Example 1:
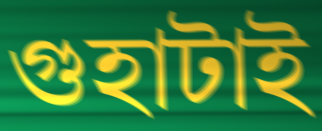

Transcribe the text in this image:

গুহাটাই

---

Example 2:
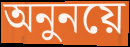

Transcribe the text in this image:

অনুনয়ে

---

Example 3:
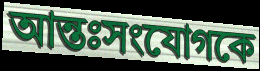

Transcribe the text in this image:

আন্তঃসংযোগকে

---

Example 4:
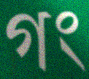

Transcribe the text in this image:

গং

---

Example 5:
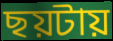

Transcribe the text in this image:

ছয়টায়